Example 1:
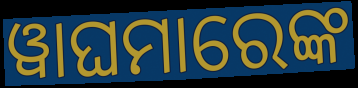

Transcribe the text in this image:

ୱାଘମାରେଙ୍କ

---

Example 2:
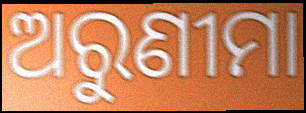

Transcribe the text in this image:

ଅରୁଣୀମା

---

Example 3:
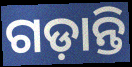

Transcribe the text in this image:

ଗଡ଼ାନ୍ତି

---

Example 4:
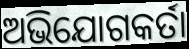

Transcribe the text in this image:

ଅଭିଯୋଗକର୍ତା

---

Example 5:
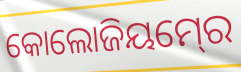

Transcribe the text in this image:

କୋଲୋଜିୟମ୍‍ରେ